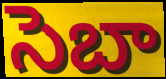
సెబా